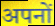
अपनों